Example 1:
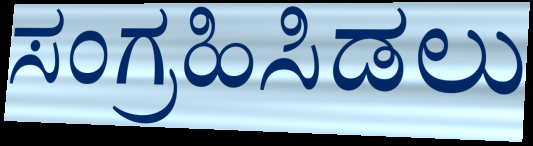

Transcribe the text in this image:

ಸಂಗ್ರಹಿಸಿಡಲು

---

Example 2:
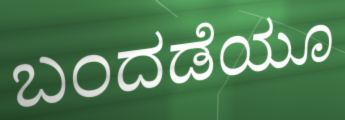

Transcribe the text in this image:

ಬಂದಡೆಯೂ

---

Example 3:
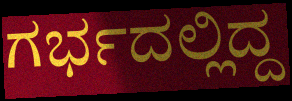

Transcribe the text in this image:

ಗರ್ಭದಲ್ಲಿದ್ದ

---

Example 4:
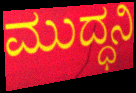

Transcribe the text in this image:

ಮುದ್ಧನಿ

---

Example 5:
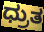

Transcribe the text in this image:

ಧ್ರುತ